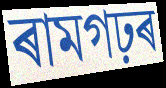
ৰামগঢ়ৰ